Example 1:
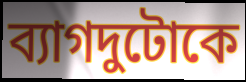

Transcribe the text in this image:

ব্যাগদুটোকে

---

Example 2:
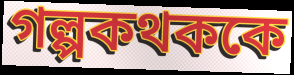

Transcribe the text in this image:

গল্পকথককে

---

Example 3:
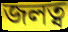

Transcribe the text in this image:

জলত্ব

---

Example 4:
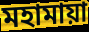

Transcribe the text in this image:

মহামায়া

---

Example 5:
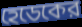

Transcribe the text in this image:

হেডেকের